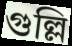
গুল্লি